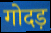
गोदड़